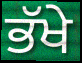
ਭੱਖੇ